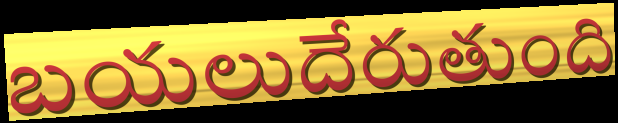
బయలుదేరుతుంది